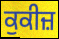
ਕੁਕੀਜ਼